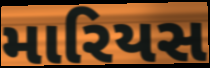
મારિયસ